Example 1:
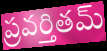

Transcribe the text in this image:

ప్రవర్తితమ్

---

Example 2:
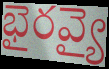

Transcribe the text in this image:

భైరవ్యై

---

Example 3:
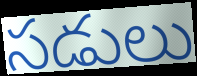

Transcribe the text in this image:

సడులు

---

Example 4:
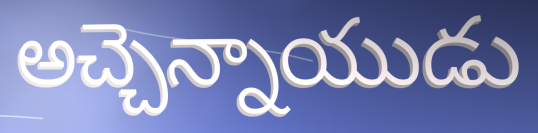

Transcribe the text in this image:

అచ్చెన్నాయుడు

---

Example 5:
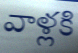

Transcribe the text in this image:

వాళ్లకి